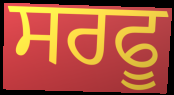
ਸਰਫੂ